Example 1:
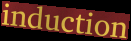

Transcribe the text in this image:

induction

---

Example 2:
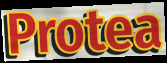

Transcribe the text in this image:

Protea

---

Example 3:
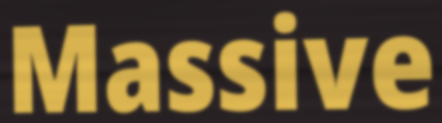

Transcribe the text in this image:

Massive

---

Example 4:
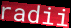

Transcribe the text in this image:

radii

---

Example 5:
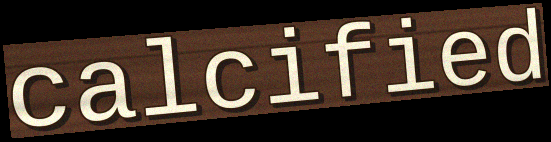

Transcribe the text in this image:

calcified